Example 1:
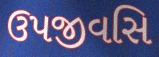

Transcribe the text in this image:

ઉપજીવસિ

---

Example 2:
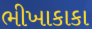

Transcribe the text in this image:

ભીખાકાકા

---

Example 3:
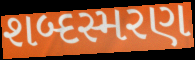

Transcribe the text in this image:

શબ્દસ્મરણ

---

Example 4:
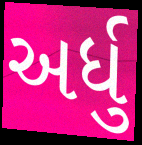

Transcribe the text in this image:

અર્ધુ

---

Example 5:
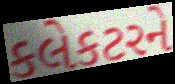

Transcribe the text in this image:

કલેકટરને